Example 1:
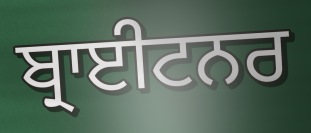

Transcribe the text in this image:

ਬ੍ਰਾਈਟਨਰ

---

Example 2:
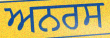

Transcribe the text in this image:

ਅਨਰਸ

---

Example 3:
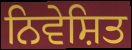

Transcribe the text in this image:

ਨਿਵੇਸ਼ਿਤ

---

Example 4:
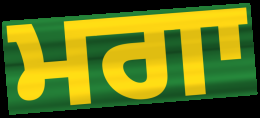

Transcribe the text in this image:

ਮਗਾ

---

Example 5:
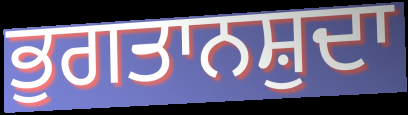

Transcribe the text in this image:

ਭੁਗਤਾਨਸ਼ੁਦਾ